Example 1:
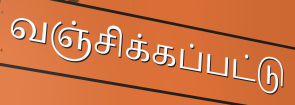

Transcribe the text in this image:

வஞ்சிக்கப்பட்டு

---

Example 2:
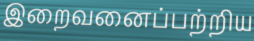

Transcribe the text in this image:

இறைவனைப்பற்றிய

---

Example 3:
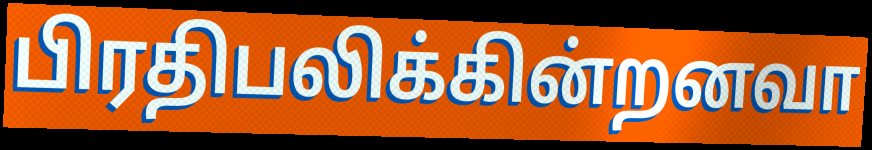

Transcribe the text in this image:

பிரதிபலிக்கின்றனவா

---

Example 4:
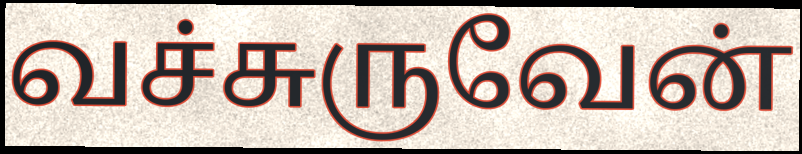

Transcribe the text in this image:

வச்சுருவேன்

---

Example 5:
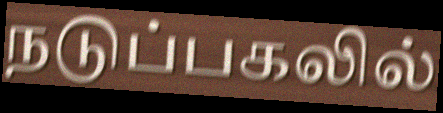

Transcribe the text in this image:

நடுப்பகலில்